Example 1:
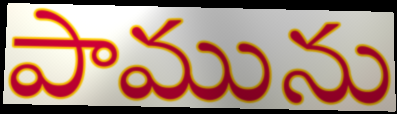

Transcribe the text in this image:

పామును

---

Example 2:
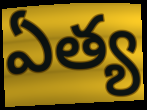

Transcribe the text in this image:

ఏత్య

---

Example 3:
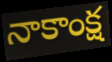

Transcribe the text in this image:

నాకాంక్ష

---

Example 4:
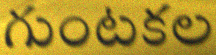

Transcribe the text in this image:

గుంటకల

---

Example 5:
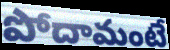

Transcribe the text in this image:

పోదామంటే